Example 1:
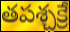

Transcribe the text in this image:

తపశ్చక్రే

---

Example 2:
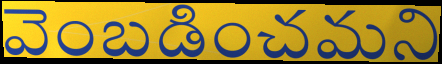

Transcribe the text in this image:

వెంబడించమని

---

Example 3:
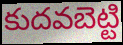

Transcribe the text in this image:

కుదవబెట్టి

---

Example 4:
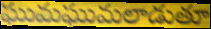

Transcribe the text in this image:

ఘుమఘుమలాడుతూ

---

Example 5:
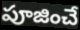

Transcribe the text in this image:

పూజించే